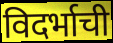
विदर्भाची